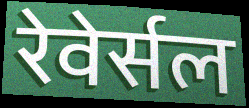
रेवेर्सल